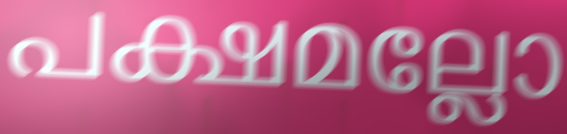
പക്ഷമല്ലോ